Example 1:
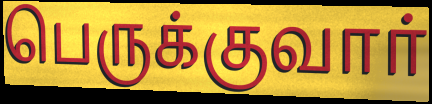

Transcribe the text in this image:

பெருக்குவார்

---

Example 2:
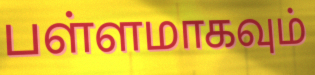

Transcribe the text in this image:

பள்ளமாகவும்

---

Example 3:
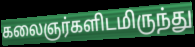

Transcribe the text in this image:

கலைஞர்களிடமிருந்து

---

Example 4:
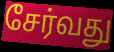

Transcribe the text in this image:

சேர்வது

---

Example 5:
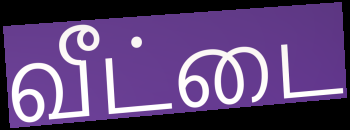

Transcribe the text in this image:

வீட்டை